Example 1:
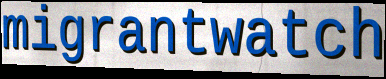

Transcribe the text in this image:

migrantwatch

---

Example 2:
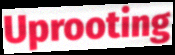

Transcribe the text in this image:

Uprooting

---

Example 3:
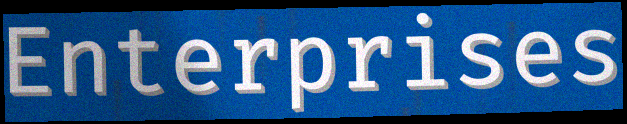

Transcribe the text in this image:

Enterprises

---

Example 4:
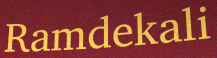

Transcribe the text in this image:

Ramdekali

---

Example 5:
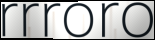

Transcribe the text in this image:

rrroro